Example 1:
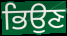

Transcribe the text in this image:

ਭਿਉਣ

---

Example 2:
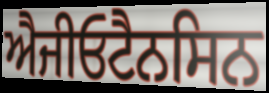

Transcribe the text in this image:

ਐਜੀਓਟੈਨਸਿਨ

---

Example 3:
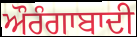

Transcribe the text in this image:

ਔਰੰਗਾਬਾਦੀ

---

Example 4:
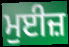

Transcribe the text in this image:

ਮੁਈਜ਼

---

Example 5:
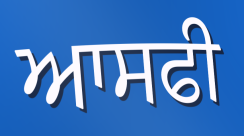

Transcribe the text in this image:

ਆਸਫੀ